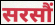
सरसौं